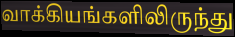
வாக்கியங்களிலிருந்து